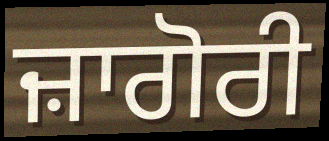
ਜ਼ਾਗੋਰੀ